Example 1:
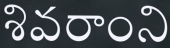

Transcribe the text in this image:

శివరాంని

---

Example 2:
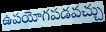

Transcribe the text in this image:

ఉపయోగపడవచ్చు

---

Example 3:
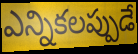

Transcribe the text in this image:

ఎన్నికలప్పుడే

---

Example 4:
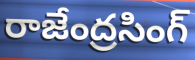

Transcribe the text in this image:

రాజేంద్రసింగ్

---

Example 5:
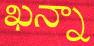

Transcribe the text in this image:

ఖన్నా